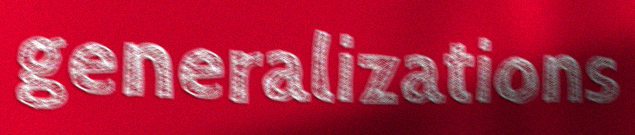
generalizations